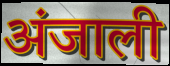
अंजाली